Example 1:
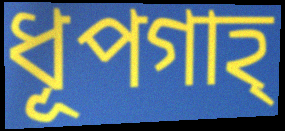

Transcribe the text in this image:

ধূপগাহ্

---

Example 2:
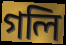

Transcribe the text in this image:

গলি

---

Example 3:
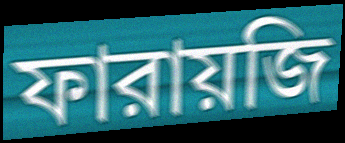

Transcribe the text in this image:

ফারায়জি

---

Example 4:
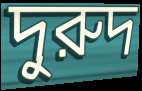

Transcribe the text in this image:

দুরুদ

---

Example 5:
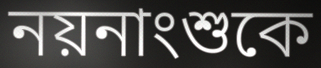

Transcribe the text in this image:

নয়নাংশুকে